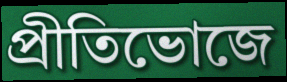
প্রীতিভোজে